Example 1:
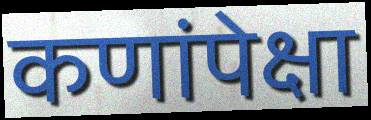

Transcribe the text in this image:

कणांपेक्षा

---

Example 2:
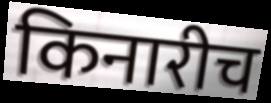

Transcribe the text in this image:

किनारीच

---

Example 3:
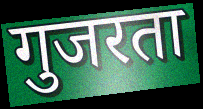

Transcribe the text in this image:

गुजरता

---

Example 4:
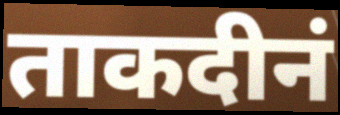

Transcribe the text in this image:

ताकदीनं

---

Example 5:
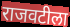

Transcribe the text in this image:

राजवटीला